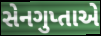
સેનગુપ્તાએ